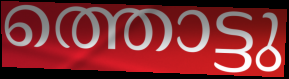
ത്തൊട്ടു